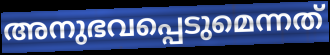
അനുഭവപ്പെടുമെന്നത്